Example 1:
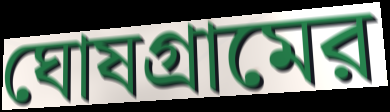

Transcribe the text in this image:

ঘোষগ্রামের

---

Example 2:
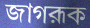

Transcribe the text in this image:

জাগরূক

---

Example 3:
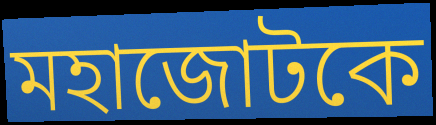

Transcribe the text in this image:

মহাজোটকে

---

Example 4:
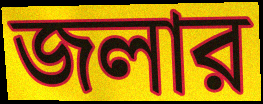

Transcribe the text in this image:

জলার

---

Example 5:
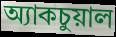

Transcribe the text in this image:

অ্যাকচুয়াল